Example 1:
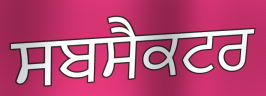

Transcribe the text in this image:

ਸਬਸੈਕਟਰ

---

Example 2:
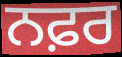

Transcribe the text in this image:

ਨਫ਼ਰ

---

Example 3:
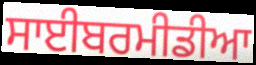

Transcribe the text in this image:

ਸਾਈਬਰਮੀਡੀਆ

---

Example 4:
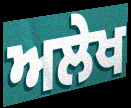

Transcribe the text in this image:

ਅਲੇਖ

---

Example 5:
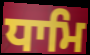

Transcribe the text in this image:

ਧਾਮਿ